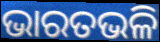
ଭାରତଭଳି